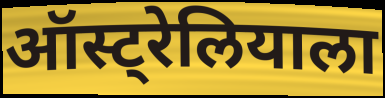
ऑस्ट्रेलियाला